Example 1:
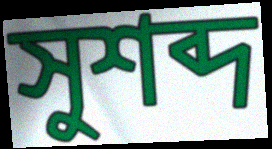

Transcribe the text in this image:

সুশব্দ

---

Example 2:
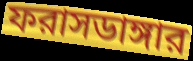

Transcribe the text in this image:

ফরাসডাঙ্গার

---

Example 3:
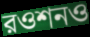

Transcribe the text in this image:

রওশনও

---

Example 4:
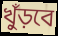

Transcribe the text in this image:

খুঁড়বে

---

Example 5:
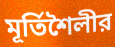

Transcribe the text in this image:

মূর্তিশৈলীর